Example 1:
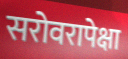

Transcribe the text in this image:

सरोवरापेक्षा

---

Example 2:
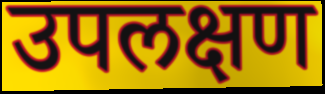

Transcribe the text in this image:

उपलक्षण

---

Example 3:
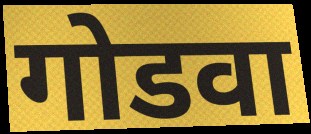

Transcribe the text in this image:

गोडवा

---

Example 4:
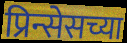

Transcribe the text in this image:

प्रिन्सेसच्या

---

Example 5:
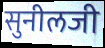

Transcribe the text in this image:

सुनीलजी